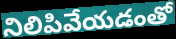
నిలిపివేయడంతో